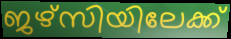
ജഴ്സിയിലേക്ക്